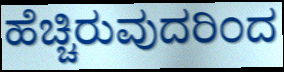
ಹೆಚ್ಚಿರುವುದರಿಂದ